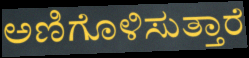
ಅಣಿಗೊಳಿಸುತ್ತಾರೆ